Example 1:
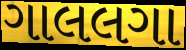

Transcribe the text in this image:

ગાલલગા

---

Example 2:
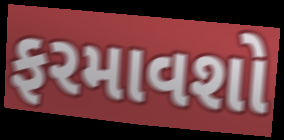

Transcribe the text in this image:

ફરમાવશો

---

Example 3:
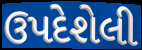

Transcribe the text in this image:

ઉપદેશેલી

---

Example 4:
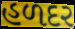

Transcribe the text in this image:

હળદર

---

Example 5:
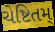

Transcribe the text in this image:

ચેષ્ટિતમ્